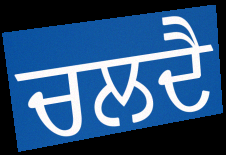
ਚਲਦੈ